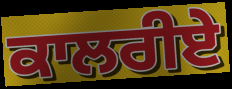
ਕਾਲਰੀਏ